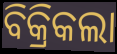
ବିକ୍ରିକଲା